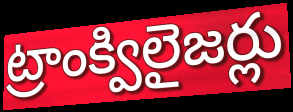
ట్రాంక్విలైజర్లు